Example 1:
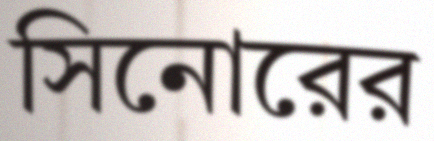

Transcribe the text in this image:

সিনোরের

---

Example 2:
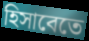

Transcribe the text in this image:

হিসাবেতে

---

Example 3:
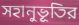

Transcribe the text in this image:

সহানুভূতির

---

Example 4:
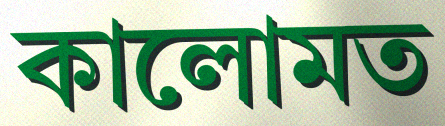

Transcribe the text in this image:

কালোমত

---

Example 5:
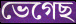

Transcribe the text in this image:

ভেগেছ